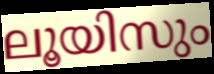
ലൂയിസും